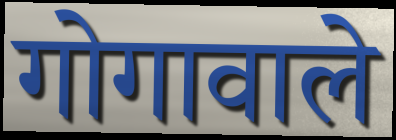
गोगावाले